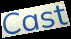
Cast